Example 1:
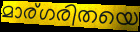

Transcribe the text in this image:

മാര്ഗരിതയെ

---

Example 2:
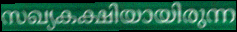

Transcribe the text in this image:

സഖ്യകക്ഷിയായിരുന്ന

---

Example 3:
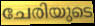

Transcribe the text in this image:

ചേരിയുടെ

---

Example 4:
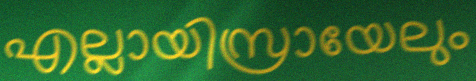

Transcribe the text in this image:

എല്ലായിസ്രായേലും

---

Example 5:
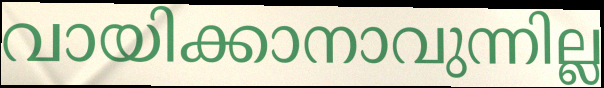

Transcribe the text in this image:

വായിക്കാനാവുന്നില്ല